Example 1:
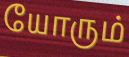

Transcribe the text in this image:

யோரும்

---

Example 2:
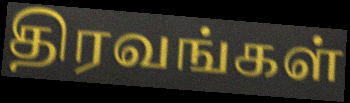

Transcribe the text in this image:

திரவங்கள்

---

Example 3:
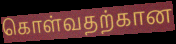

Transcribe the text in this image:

கொள்வதற்கான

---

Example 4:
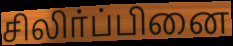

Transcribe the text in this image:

சிலிர்ப்பினை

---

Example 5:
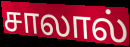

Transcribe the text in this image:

சாலால்